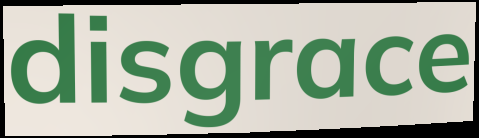
disgrace